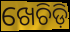
ଖେଚିଡ଼ି